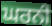
ਘਰਨੀ